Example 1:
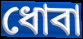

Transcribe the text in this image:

ধোবা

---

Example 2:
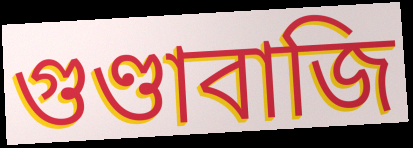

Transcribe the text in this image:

গুণ্ডাবাজি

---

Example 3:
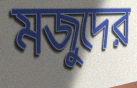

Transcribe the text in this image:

মজুদের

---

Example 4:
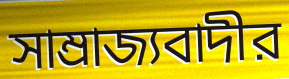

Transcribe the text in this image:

সাম্রাজ্যবাদীর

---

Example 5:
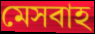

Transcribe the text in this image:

মেসবাহ